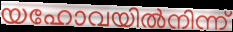
യഹോവയിൽനിന്ന്